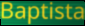
Baptista